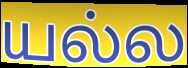
யல்ல